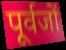
पूर्वजों